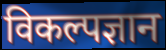
विकल्पज्ञान